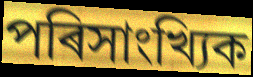
পৰিসাংখ্যিক